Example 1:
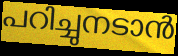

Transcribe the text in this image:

പറിച്ചുനടാൻ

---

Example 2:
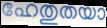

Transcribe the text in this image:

ഹേതുതയാ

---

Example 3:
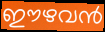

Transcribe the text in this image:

ഈഴവൻ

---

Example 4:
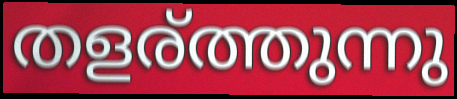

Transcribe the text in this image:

തളര്ത്തുന്നു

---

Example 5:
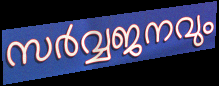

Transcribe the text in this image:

സർവ്വജനവും